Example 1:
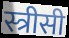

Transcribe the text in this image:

स्त्रीसी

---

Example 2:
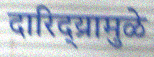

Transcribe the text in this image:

दारिद्य्रामुळे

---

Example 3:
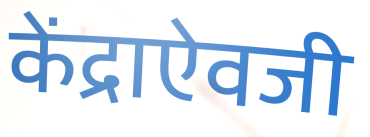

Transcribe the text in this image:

केंद्राऐवजी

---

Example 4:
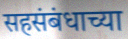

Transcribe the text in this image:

सहसंबंधाच्या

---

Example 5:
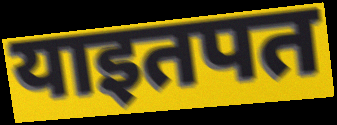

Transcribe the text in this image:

याइतपत